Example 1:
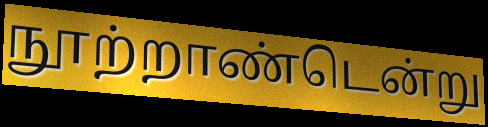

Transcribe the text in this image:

நூற்றாண்டென்று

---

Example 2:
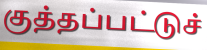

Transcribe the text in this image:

குத்தப்பட்டுச்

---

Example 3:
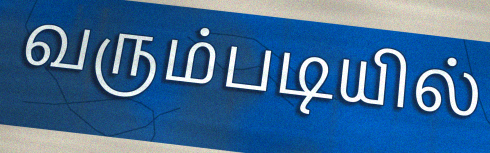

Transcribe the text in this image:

வரும்படியில்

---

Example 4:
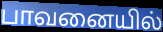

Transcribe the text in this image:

பாவனையில்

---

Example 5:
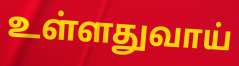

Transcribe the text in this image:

உள்ளதுவாய்